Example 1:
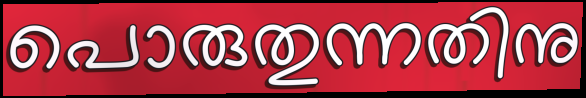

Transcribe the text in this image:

പൊരുതുന്നതിനു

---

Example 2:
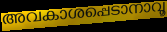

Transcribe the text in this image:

അവകാശപ്പെടാനാവൂ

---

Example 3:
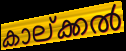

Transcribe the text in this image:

കാല്ക്കൽ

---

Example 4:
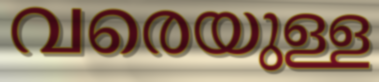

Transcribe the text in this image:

വരെയുള്ള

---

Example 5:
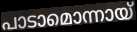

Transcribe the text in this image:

പാടാമൊന്നായ്